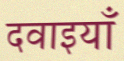
दवाइयाँ